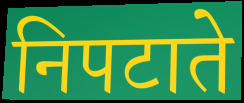
निपटाते